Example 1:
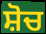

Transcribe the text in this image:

ਸ਼ੋਚ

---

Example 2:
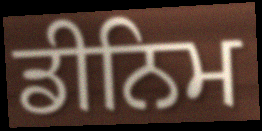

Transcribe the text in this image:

ਡੀਨਿਮ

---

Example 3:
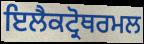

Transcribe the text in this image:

ਇਲੈਕਟ੍ਰੋਥਰਮਲ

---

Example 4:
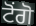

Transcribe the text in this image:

ਟੋਂਗੋ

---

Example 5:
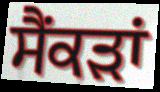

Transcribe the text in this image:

ਸੈਂਕੜਾਂ